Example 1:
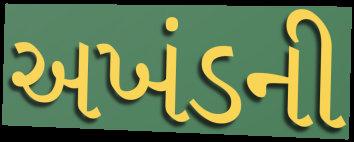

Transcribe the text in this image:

અખંડની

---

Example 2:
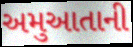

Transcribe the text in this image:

અમુઆતાની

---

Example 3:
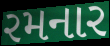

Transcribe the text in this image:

રમનાર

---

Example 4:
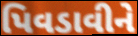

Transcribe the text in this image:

પિવડાવીને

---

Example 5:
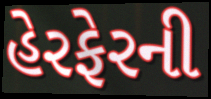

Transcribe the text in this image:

હેરફેરની